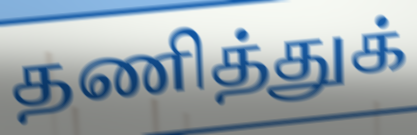
தணித்துக்